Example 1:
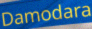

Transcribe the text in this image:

Damodara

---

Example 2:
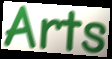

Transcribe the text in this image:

Arts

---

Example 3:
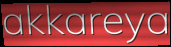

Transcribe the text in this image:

akkareya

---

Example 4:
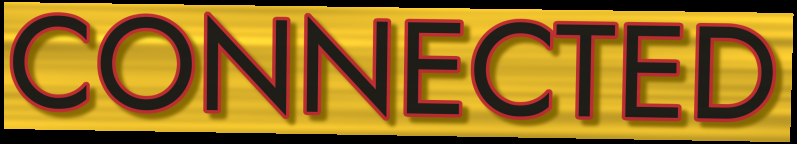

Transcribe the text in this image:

CONNECTED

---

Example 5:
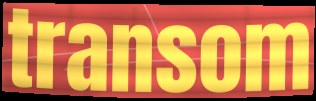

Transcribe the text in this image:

transom